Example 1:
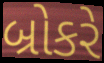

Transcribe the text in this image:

બ્રોકરે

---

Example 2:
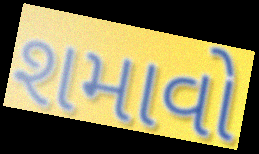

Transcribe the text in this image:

શમાવો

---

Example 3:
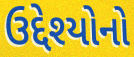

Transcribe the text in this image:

ઉદ્દેશ્યોનો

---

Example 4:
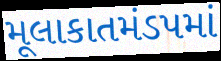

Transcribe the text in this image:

મૂલાકાતમંડપમાં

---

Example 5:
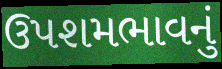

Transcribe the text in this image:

ઉપશમભાવનું